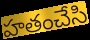
హతంచేసి